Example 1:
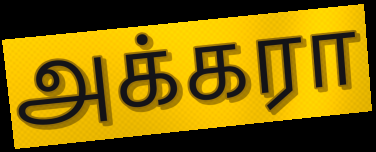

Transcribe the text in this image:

அக்கரா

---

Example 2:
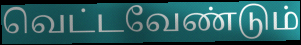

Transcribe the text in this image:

வெட்டவேண்டும்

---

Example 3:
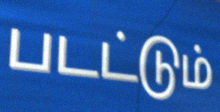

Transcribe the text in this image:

படட்டும்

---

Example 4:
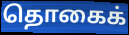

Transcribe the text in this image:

தொகைக்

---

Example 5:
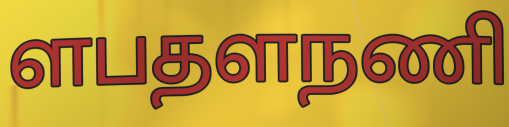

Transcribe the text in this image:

ளபதளநணி